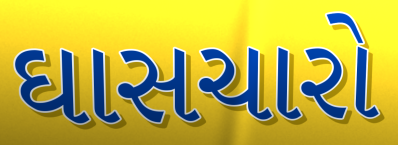
ઘાસચારો